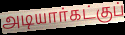
அடியார்கட்குப்